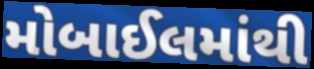
મોબાઈલમાંથી